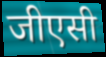
जीएसी